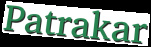
Patrakar